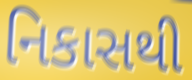
નિકાસથી